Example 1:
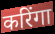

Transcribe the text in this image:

करिंगा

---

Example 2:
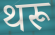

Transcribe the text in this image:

थरू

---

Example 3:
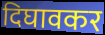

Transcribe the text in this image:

दिघावकर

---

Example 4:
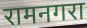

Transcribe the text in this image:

रामनगरा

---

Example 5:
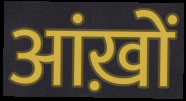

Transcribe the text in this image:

आंख़ों